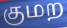
குமற